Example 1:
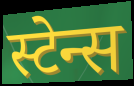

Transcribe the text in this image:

स्टेन्स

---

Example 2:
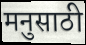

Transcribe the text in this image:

मनुसाठी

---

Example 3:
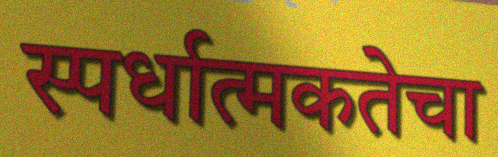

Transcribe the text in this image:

स्पर्धात्मकतेचा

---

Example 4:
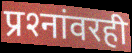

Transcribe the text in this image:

प्रश्नांवरही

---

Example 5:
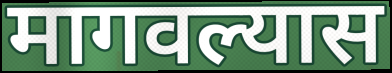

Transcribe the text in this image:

मागवल्यास